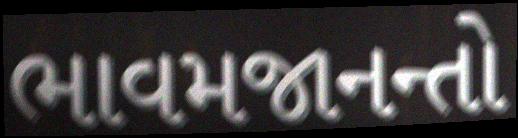
ભાવમજાનન્તો